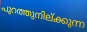
പുറത്തുനില്ക്കുന്ന